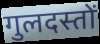
गुलदस्तों